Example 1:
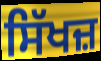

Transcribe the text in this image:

ਸਿੱਖਜ਼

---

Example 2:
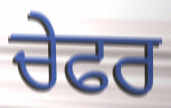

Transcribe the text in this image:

ਚੇਫਰ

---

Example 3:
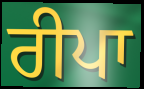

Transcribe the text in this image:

ਰੀਪਾ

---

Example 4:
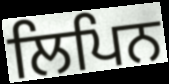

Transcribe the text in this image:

ਲਿਪਿਨ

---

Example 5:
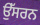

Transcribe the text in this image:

ਉੱਸਰਨ